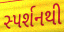
સ્પર્શનથી